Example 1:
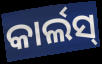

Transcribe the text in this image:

କାର୍ଲସ୍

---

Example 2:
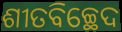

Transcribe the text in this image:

ଶୀତବିଚ୍ଛେଦ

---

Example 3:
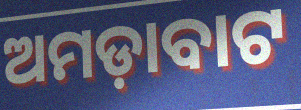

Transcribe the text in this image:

ଅମଡ଼ାବାଟ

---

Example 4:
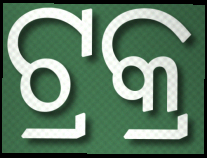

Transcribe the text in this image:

ଟ୍ରକ୍ର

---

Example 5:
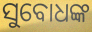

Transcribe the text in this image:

ସୁବୋଧଙ୍କ